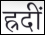
ह्रदीं